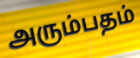
அரும்பதம்